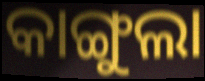
କାଙ୍ଗୁଲା